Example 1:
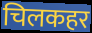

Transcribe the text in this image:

चिलकहर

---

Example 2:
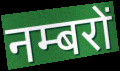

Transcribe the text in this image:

नम्बरों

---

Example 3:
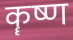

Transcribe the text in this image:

कॄष्ण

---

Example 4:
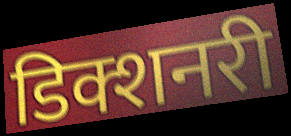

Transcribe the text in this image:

डिक्‍शनरी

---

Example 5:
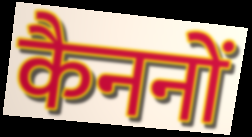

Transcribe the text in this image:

कैननों